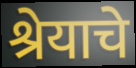
श्रेयाचे